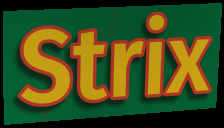
Strix